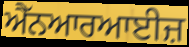
ਐੱਨਆਰਆਈਜ਼